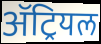
ॲट्रियल